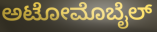
ಅಟೋಮೊಬೈಲ್